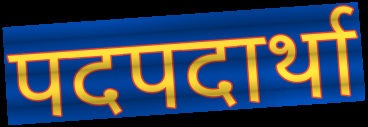
पदपदार्था